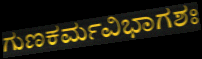
ಗುಣಕರ್ಮವಿಭಾಗಶಃ